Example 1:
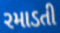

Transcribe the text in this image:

રમાડતી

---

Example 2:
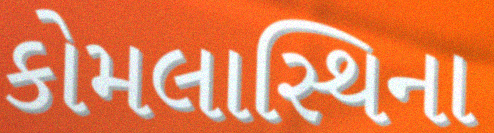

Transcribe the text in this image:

કોમલાસ્થિના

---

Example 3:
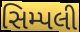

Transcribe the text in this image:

સિમ્પલી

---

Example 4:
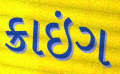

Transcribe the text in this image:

ક્રાઇંગ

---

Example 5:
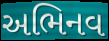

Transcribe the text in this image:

અભિનવ